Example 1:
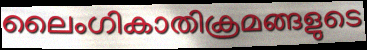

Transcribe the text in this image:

ലൈംഗികാതിക്രമങ്ങളുടെ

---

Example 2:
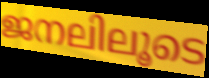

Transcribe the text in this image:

ജനലിലൂടെ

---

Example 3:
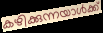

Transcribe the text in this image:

കഴിക്കുന്നയാൾക്ക്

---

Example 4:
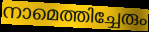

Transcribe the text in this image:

നാമെത്തിച്ചേരും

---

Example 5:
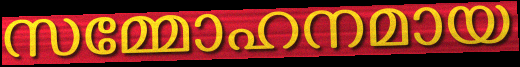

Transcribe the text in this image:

സമ്മോഹനമായ